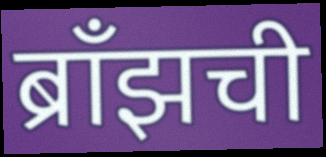
ब्राँझची